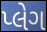
પ્લેગ